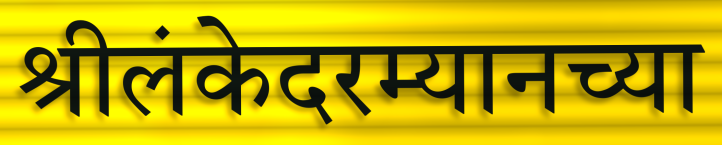
श्रीलंकेदरम्यानच्या